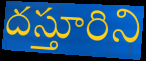
దస్తూరిని